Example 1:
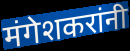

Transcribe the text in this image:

मंगेशकरांनी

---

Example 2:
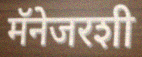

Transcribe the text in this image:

मॅनेजरशी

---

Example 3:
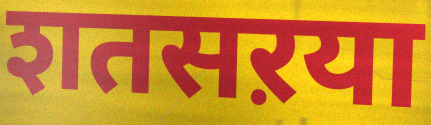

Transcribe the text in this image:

शतसऱया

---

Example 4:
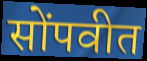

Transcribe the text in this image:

सोंपवीत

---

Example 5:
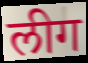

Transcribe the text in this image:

लीग